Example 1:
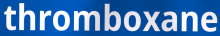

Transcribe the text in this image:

thromboxane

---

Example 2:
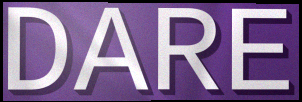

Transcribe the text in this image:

DARE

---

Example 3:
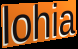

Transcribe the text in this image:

lohia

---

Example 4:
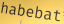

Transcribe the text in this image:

habebat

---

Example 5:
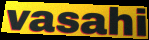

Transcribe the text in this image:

vasahi